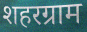
शहरग्राम